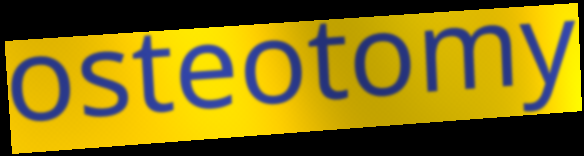
osteotomy